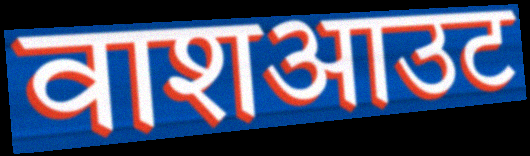
वाशआउट